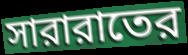
সারারাতের